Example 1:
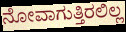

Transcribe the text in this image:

ನೋವಾಗುತ್ತಿರಲಿಲ್ಲ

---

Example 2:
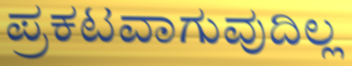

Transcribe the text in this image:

ಪ್ರಕಟವಾಗುವುದಿಲ್ಲ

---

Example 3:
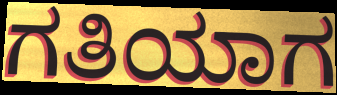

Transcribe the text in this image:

ಗತಿಯಾಗ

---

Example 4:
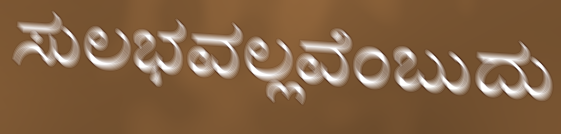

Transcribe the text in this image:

ಸುಲಭವಲ್ಲವೆಂಬುದು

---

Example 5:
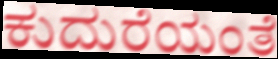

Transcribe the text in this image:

ಕುದುರೆಯಂತೆ